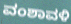
ವಂಶಾವಳಿ